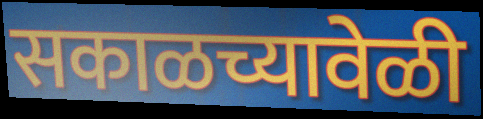
सकाळच्यावेळी